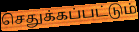
செதுக்கப்பட்டும்